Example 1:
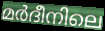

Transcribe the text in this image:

മർദീനിലെ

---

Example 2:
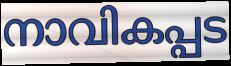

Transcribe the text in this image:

നാവികപ്പട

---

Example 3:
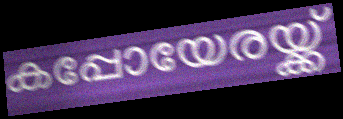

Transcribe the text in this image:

കപ്പോയേരയ്ക്ക്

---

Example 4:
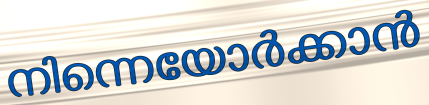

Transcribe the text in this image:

നിന്നെയോർക്കാൻ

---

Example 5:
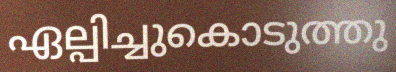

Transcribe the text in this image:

ഏല്പിച്ചുകൊടുത്തു